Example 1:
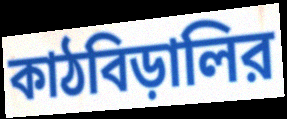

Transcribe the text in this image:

কাঠবিড়ালির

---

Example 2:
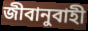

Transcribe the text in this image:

জীবানুবাহী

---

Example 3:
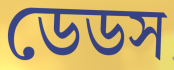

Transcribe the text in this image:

ডেডস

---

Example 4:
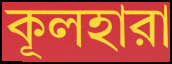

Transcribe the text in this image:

কূলহারা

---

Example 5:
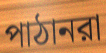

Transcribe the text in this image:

পাঠানরা